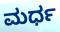
ಮರ್ಧ